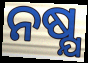
ନଷ୍ଯ